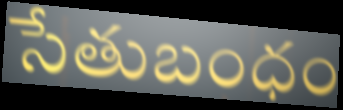
సేతుబంధం